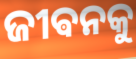
ଜୀଵନକୁ